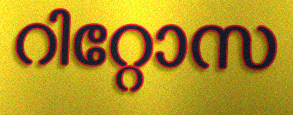
റിറ്റോസ